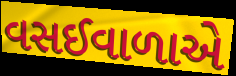
વસઈવાળાએ